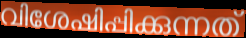
വിശേഷിപ്പിക്കുന്നത്